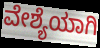
ವೇಶ್ಯೆಯಾಗಿ